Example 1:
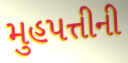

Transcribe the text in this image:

મુહપત્તીની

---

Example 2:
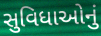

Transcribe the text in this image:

સુવિધાઓનું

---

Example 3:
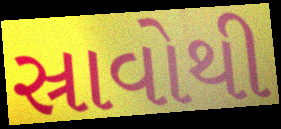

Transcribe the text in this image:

સ્રાવોથી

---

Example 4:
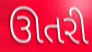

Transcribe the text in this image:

ઊતરી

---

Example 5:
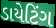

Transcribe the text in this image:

ડાયેટિંગ